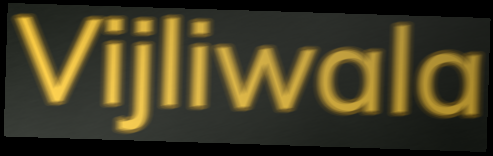
Vijliwala